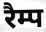
रैम्प